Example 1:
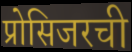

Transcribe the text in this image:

प्रोसिजरची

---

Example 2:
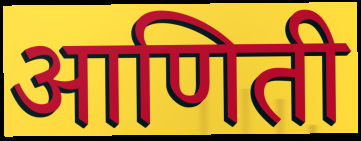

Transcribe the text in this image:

आणिती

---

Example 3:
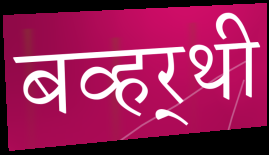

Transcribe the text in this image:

बव्हर्थी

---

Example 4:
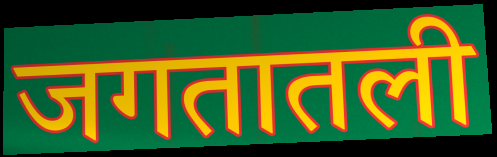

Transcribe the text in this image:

जगतातली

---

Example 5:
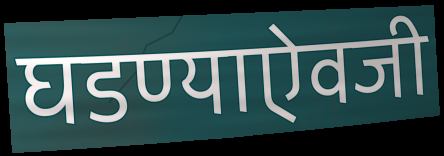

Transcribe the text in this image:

घडण्याऐवजी